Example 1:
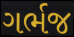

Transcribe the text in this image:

ગર્ભજ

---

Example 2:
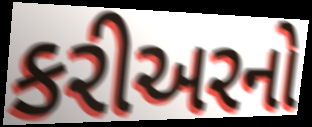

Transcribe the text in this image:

કરીઅરનો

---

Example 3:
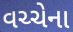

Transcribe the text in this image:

વચ્ચેના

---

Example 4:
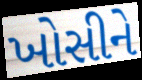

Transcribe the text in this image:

ખોસીને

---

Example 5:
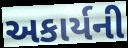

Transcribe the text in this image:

અકાર્યની